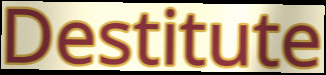
Destitute